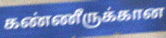
கண்ணீருக்கான